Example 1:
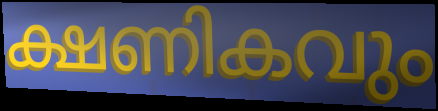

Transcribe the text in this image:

ക്ഷണികവും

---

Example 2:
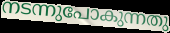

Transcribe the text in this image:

നടന്നുപോകുന്നതു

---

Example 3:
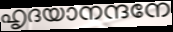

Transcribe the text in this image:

ഹൃദയാനന്ദനേ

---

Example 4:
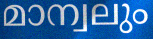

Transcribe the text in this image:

മാന്വലും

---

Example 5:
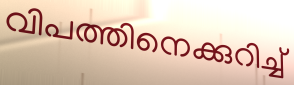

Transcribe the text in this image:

വിപത്തിനെക്കുറിച്ച്